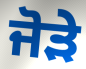
ਜੋੜੇ